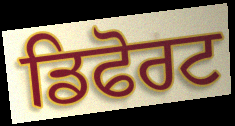
ਡਿਫੋਰਟ